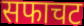
सफाचट